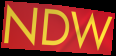
NDW